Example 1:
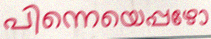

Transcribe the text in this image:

പിന്നെയെപ്പഴോ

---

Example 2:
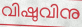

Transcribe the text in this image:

വിഷുവിനു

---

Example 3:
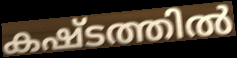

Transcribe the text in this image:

കഷ്ടത്തിൽ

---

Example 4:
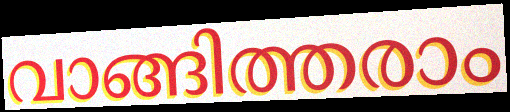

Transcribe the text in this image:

വാങ്ങിത്തരാം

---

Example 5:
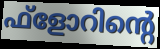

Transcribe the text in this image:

ഫ്ളോറിന്റെ